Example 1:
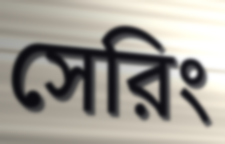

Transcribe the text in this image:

সেরিং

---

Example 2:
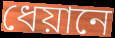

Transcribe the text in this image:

ধেয়ানে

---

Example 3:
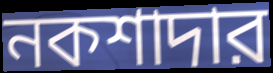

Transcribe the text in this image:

নকশাদার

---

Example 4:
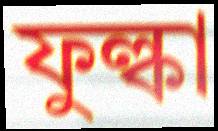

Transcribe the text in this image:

ফুল্কা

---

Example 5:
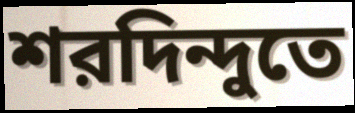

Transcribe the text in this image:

শরদিন্দুতে